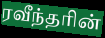
ரவீந்தரின்